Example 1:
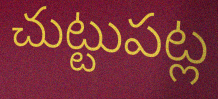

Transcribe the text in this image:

చుట్టుపట్ల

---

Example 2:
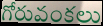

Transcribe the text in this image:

గోరువంకలు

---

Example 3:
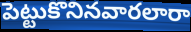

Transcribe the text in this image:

పెట్టుకొనినవారలారా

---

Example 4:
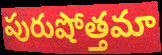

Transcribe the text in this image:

పురుషోత్తమా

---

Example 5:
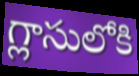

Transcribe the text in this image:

గ్లాసులోకి